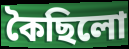
কৈছিলো